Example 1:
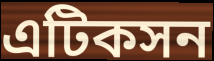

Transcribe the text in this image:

এটিকসন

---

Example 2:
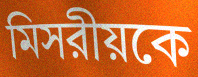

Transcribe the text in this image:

মিসরীয়কে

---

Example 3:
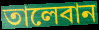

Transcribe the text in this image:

তালেবান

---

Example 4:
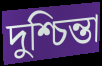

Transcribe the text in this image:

দুশ্চিন্তা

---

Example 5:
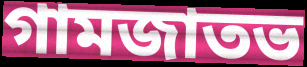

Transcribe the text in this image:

গামজাতভ